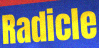
Radicle